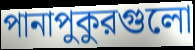
পানাপুকুরগুলো